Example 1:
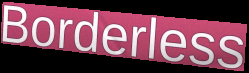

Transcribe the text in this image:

Borderless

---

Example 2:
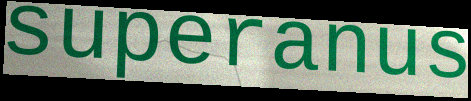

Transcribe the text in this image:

superanus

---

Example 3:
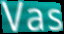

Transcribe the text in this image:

Vas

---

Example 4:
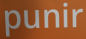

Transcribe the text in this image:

punir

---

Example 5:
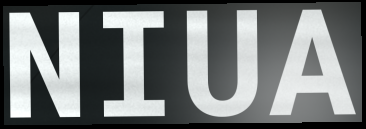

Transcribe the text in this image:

NIUA